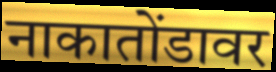
नाकातोंडावर